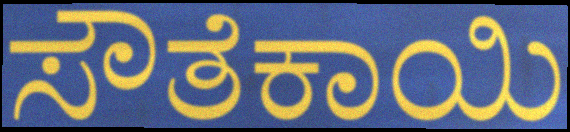
ಸೌತೆಕಾಯಿ